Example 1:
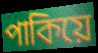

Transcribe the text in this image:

পাকিয়ে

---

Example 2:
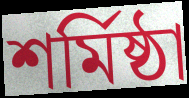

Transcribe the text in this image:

শর্মিষ্ঠা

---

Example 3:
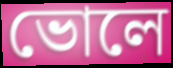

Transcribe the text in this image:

ভোলে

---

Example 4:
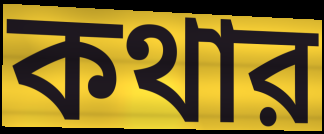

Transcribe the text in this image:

কথার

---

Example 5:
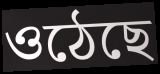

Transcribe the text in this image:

ওঠেছে